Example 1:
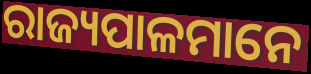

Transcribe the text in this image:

ରାଜ୍ୟପାଳମାନେ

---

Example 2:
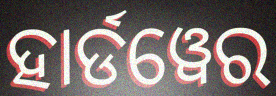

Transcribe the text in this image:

ହାର୍ଡୱେର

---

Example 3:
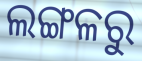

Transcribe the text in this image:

ଲଙ୍ଗଳରୁ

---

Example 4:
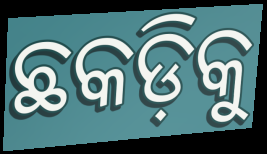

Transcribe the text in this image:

ଛକଡ଼ିକୁ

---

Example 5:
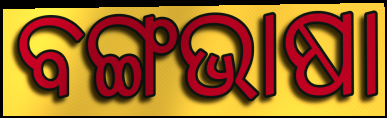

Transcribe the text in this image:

ବଙ୍ଗଭାଷା